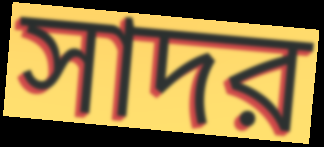
সাদর